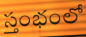
స్తంభంలో